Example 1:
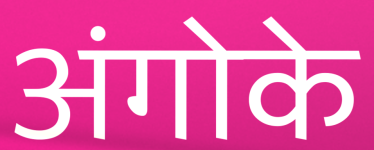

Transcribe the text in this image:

अंगोके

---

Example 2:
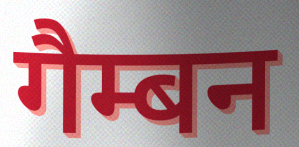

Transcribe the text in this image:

गैम्बन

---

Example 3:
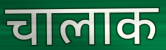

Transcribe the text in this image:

चालाक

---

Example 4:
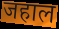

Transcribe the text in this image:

जहाल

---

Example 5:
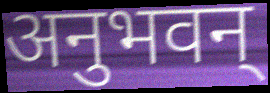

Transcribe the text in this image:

अनुभवन्